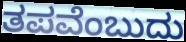
ತಪವೆಂಬುದು